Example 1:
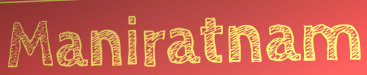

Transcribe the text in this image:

Maniratnam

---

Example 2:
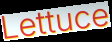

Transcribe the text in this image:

Lettuce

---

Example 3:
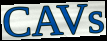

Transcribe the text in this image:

CAVs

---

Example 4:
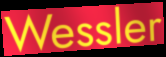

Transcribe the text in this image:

Wessler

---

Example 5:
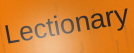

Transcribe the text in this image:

Lectionary